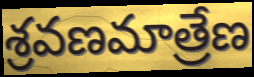
శ్రవణమాత్రేణ